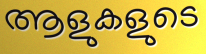
ആളുകളുടെ